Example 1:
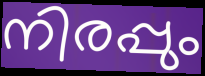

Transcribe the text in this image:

നിരപ്പും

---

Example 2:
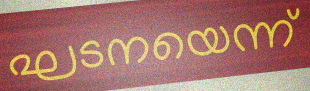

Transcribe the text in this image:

ഘടനയെന്ന്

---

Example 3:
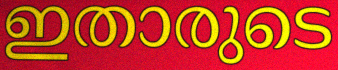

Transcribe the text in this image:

ഇതാരുടെ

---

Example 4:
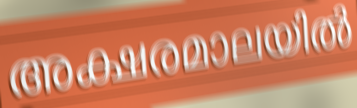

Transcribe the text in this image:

അക്ഷരമാലയിൽ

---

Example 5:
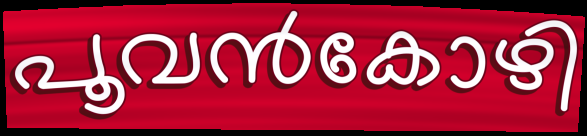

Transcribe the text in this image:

പൂവൻകോഴി